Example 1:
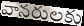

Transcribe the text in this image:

వానరులకు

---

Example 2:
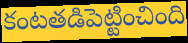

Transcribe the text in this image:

కంటతడిపెట్టించింది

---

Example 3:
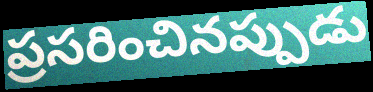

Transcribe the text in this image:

ప్రసరించినప్పుడు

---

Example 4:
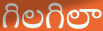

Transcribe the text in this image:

గిలగిలా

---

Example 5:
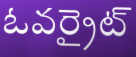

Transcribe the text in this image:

ఓవర్రైట్